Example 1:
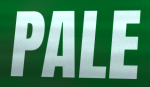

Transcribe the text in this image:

PALE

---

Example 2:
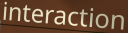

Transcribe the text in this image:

interaction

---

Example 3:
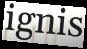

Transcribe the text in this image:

ignis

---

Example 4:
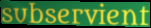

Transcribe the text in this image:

subservient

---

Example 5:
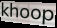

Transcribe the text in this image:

khoop